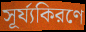
সূর্য্যকিরণে